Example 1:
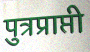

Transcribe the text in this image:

पुत्रप्राप्ती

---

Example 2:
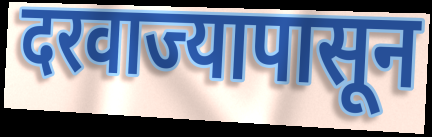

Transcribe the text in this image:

दरवाज्यापासून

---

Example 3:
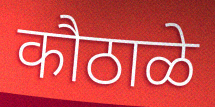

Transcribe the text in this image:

कौठाळे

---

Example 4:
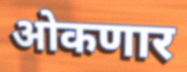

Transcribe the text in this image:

ओकणार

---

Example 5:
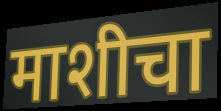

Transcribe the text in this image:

माशीचा